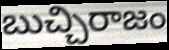
బుచ్చిరాజం